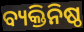
ବ୍ୟକ୍ତିନିଷ୍ଠ